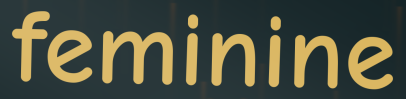
feminine